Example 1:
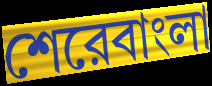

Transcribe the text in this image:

শেরেবাংলা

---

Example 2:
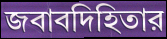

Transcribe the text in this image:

জবাবদিহিতার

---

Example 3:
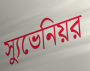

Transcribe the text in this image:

স্যুভেনিয়র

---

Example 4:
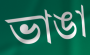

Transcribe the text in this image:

ভাঙা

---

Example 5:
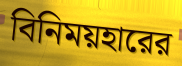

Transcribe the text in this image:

বিনিময়হারের